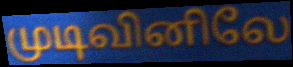
முடிவினிலே